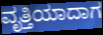
ವೃತ್ತಿಯಾದಾಗ